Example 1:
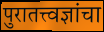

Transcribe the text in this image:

पुरातत्त्वज्ञांचा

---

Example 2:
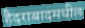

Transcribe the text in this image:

हैदराबादमधील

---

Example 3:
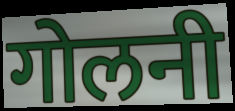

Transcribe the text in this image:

गोलनी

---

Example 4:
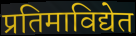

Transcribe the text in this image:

प्रतिमाविद्येत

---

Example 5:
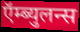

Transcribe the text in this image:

ऍम्ब्युलन्स